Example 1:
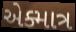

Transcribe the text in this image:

એક્માત્ર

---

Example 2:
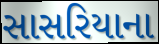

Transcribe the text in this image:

સાસરિયાના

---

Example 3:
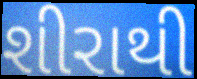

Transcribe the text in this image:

શીરાથી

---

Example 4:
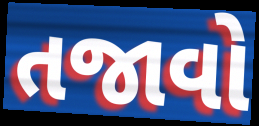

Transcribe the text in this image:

તજાવો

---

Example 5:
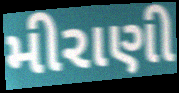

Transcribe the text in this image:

મીરાણી